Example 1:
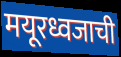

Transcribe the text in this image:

मयूरध्वजाची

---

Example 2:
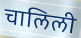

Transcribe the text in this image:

चालिली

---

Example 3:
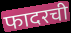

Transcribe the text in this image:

फादरची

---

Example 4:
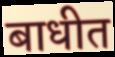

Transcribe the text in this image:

बाधीत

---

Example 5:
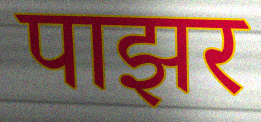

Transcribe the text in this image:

पाझर